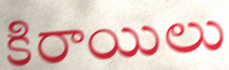
కిరాయిలు